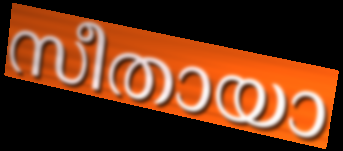
സീതായാ